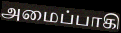
அமைப்பாகி